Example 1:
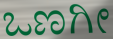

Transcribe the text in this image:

ಒಣಗೀ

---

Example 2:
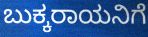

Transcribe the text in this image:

ಬುಕ್ಕರಾಯನಿಗೆ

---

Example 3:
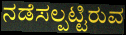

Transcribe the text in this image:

ನಡೆಸಲ್ಪಟ್ಟಿರುವ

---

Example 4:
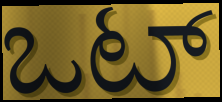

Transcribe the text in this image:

ಒಟ್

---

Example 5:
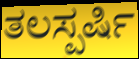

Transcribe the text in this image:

ತಲಸ್ಪರ್ಷಿ